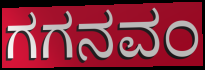
ಗಗನವಂ